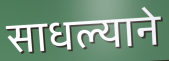
साधल्याने